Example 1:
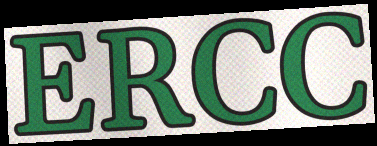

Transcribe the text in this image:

ERCC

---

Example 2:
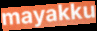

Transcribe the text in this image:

mayakku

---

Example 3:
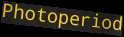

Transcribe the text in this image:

Photoperiod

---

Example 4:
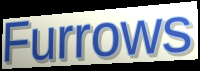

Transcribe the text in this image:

Furrows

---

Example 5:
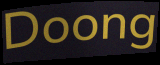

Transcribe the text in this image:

Doong